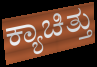
ಕ್ಯಾಚಿತ್ತು